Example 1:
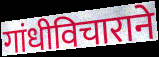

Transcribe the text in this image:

गांधीविचाराने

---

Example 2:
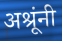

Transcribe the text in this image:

अश्रूंनी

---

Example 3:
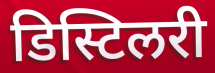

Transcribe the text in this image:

डिस्टिलरी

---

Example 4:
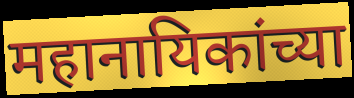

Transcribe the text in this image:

महानायिकांच्या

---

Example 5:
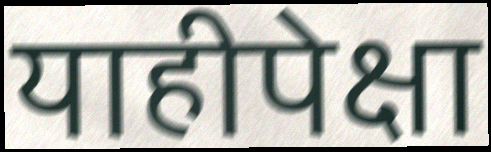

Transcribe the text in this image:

याहीपेक्षा